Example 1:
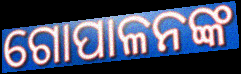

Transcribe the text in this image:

ଗୋପାଳନଙ୍କ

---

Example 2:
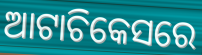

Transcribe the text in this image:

ଆଟାଚିକେସରେ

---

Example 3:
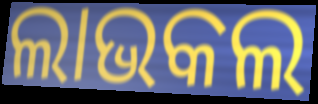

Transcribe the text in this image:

ଲାଭକଲ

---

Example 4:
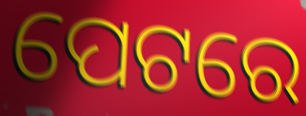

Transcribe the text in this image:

ପେଟରେ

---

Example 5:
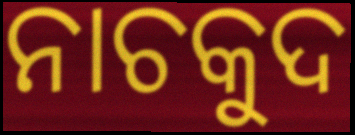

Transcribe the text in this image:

ନାଚକୁଦ